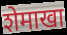
शेमाखा